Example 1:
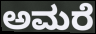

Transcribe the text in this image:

ಅಮರೆ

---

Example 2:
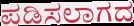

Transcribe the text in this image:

ಪಡಿಸಲಾಗದ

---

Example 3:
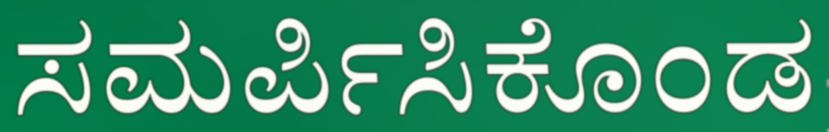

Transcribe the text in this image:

ಸಮರ್ಪಿಸಿಕೊಂಡ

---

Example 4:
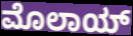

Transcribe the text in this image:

ಮೊಲಾಯ್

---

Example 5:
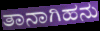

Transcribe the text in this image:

ತಾನಾಗಿಹನು